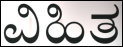
ವಿಹಿತ